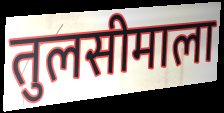
तुलसीमाला